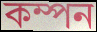
কম্পন